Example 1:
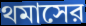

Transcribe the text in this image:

থমাসের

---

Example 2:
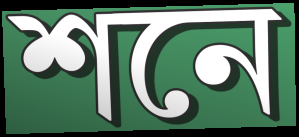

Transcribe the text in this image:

শনে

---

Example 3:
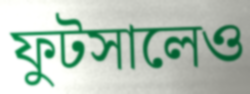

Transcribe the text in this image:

ফুটসালেও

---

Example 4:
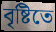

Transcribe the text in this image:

বৃষ্টিতে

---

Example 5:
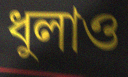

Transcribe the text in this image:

ধুলাও